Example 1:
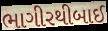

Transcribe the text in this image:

ભાગીરથીબાઈ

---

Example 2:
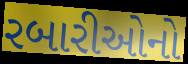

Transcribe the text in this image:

રબારીઓનો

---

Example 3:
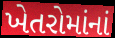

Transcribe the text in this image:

ખેતરોમાંનાં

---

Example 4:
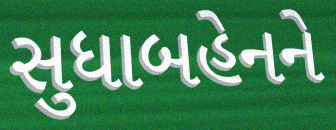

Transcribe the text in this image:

સુધાબહેનને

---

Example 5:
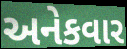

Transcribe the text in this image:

અનેકવાર